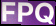
FPQ